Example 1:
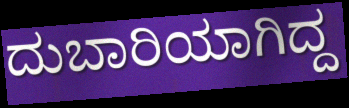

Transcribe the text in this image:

ದುಬಾರಿಯಾಗಿದ್ದ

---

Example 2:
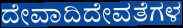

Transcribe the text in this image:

ದೇವಾದಿದೇವತೆಗಳ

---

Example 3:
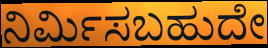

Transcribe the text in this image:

ನಿರ್ಮಿಸಬಹುದೇ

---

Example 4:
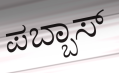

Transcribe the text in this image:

ಪಬ್ಬಾಸ್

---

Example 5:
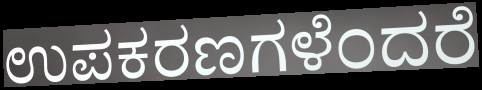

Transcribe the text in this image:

ಉಪಕರಣಗಳೆಂದರೆ